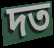
দত